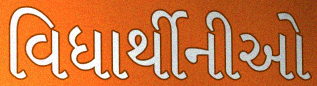
વિધાર્થીનીઓ